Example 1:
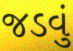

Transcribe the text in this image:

જડવું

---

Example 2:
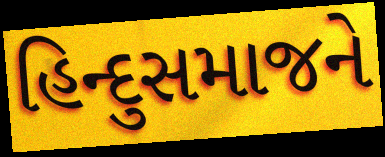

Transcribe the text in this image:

હિન્દુસમાજને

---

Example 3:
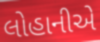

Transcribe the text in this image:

લોહાનીએ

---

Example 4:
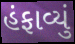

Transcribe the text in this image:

હંફાવ્યું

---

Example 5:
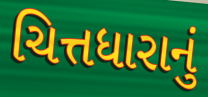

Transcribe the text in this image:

ચિત્તધારાનું